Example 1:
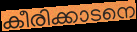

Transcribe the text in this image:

കീരിക്കാടനെ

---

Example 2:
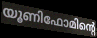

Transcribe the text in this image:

യൂണിഫോമിന്റെ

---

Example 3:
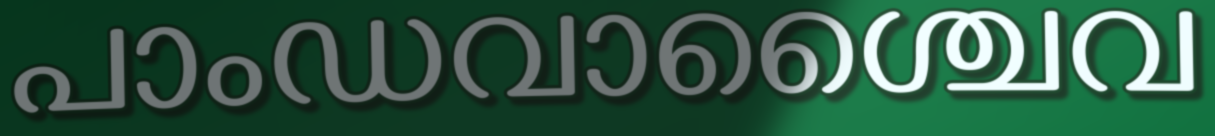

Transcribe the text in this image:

പാംഡവാശ്ചൈവ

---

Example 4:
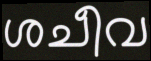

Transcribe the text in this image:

ശചീവ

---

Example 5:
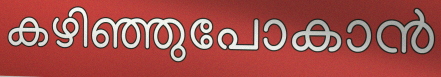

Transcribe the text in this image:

കഴിഞ്ഞുപോകാൻ